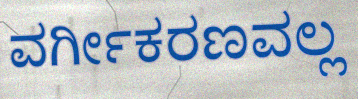
ವರ್ಗೀಕರಣವಲ್ಲ